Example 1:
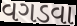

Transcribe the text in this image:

વગડવા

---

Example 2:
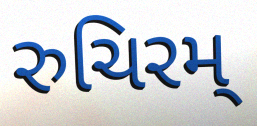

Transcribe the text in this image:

રુચિરમ્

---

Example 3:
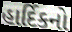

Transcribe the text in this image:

હાર્દિકનો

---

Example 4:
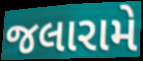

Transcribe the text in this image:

જલારામે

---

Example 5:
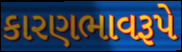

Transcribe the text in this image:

કારણભાવરૂપે